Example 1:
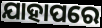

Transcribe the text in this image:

ଯାହାପରେ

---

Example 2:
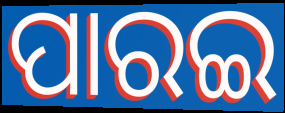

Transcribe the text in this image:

ପାରଇ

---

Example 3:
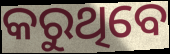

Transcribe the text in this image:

କରୁଥିବେ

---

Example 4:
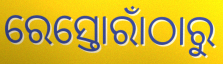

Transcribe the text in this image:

ରେସ୍ତୋରାଁଠାରୁ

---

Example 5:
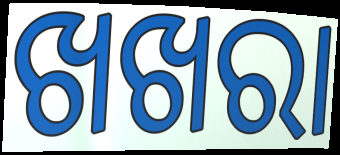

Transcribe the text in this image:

ଖଖରା